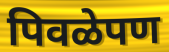
पिवळेपण